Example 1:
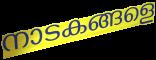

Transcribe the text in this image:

നാടകങ്ങളെ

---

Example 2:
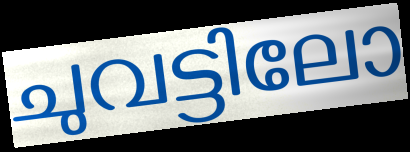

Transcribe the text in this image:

ചുവട്ടിലോ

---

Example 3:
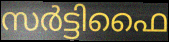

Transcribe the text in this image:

സർട്ടിഫൈ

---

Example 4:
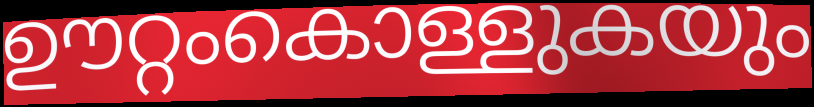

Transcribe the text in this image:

ഊറ്റംകൊള്ളുകയും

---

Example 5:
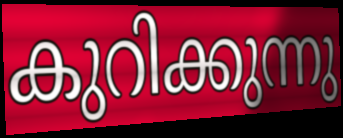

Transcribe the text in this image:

കുറിക്കുന്നു